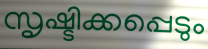
സൃഷ്ടിക്കപ്പെടും